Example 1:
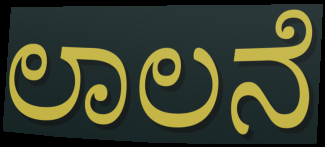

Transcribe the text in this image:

ಲಾಲನೆ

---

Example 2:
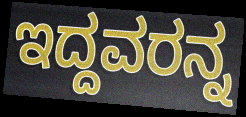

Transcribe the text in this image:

ಇದ್ದವರನ್ನ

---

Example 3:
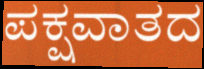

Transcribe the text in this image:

ಪಕ್ಷವಾತದ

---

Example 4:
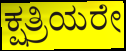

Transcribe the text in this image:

ಕ್ಷತ್ರಿಯರೇ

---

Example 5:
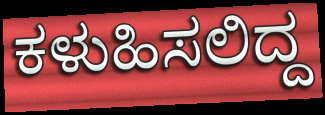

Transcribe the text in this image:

ಕಳುಹಿಸಲಿದ್ದ